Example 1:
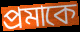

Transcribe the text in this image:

প্রমাকে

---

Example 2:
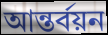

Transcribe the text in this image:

আন্তর্বয়ন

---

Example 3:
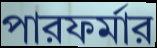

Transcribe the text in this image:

পারফর্মার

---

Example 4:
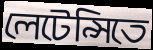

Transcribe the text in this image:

লেটেন্সিতে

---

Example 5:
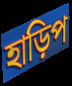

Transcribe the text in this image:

হাড়িপ